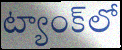
ట్యాంక్‌లో